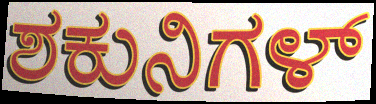
ಶಕುನಿಗಳ್